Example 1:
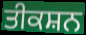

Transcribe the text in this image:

ਤੀਕਸ਼ਨ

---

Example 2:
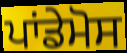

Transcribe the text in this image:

ਪਾਂਡੇਮੋਸ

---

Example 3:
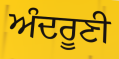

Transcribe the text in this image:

ਅੰਦਰੂਣੀ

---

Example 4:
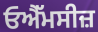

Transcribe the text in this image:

ਓਐੱਮਸੀਜ਼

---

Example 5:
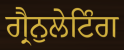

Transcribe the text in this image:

ਗ੍ਰੈਨੁਲੇਟਿੰਗ